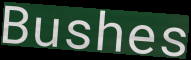
Bushes